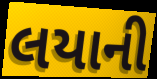
લયાની